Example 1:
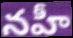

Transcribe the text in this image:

నహీ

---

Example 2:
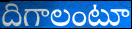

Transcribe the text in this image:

దిగాలంటూ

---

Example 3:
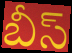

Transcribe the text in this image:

బీస్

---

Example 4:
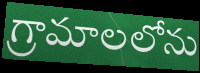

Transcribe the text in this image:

గ్రామాలలోను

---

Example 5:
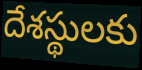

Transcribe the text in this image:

దేశస్థులకు